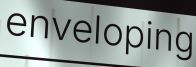
enveloping